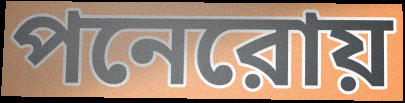
পনেরোয়